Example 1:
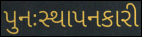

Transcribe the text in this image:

પુનઃસ્થાપનકારી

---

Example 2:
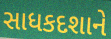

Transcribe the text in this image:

સાધકદશાને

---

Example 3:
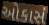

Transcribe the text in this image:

ઓકાસં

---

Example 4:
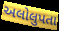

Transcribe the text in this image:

અલોલુપતા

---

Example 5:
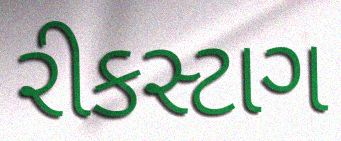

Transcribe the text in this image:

રીકસ્ટાગ